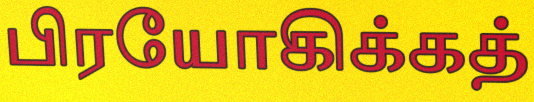
பிரயோகிக்கத்